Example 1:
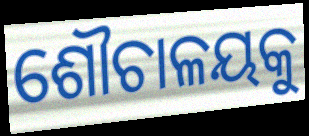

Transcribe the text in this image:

ଶୌଚାଳୟକୁ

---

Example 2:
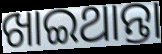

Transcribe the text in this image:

ଖାଇଥାନ୍ତା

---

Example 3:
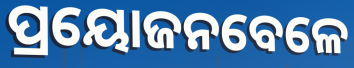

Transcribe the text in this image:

ପ୍ରୟୋଜନବେଳେ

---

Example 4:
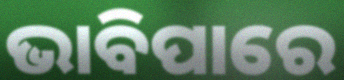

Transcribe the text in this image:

ଭାବିପାରେ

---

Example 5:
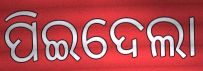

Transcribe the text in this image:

ପିଇଦେଲା